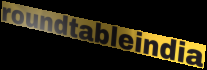
roundtableindia